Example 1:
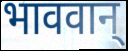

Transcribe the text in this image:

भाववान्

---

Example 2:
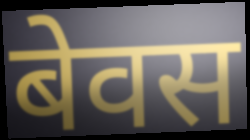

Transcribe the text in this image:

बेवस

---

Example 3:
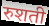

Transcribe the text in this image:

रुशती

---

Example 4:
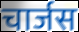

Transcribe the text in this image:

चार्जस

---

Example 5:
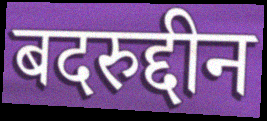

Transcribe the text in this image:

बदरुद्दीन